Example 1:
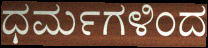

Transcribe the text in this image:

ಧರ್ಮಗಳಿಂದ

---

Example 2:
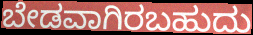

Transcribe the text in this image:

ಬೇಡವಾಗಿರಬಹುದು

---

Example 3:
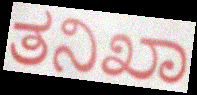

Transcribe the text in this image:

ತನಿಖಾ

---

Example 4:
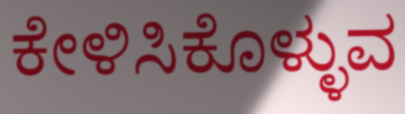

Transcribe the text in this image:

ಕೇಳಿಸಿಕೊಳ್ಳುವ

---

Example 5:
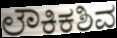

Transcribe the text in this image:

ಲೌಕಿಕಶಿವ